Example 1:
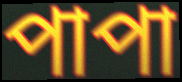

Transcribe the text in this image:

পাপা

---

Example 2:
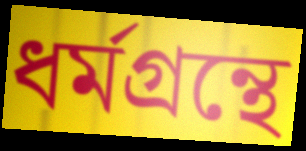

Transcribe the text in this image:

ধর্মগ্রন্থে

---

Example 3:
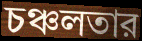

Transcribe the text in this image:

চঞ্চলতার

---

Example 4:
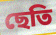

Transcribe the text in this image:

ছেতি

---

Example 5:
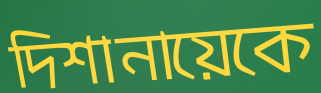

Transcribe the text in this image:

দিশানায়েকে